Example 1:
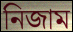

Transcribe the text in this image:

নিজাম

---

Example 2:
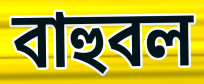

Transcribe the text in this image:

বাহুবল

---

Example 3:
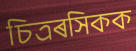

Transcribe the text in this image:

চিত্ৰৰসিকক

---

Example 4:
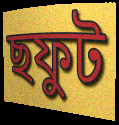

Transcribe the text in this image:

ছফুট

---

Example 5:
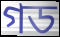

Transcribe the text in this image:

গড